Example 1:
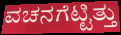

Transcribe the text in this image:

ವಚನಗೆಟ್ಟಿತ್ತು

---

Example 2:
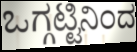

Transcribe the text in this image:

ಒಗ್ಗಟ್ಟಿನಿಂದ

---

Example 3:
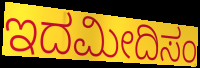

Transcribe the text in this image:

ಇದಮೀದಿಸಂ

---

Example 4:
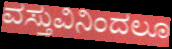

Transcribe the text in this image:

ವಸ್ತುವಿನಿಂದಲೂ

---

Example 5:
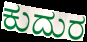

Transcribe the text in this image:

ಕುದುರ